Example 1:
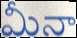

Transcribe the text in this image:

మీనా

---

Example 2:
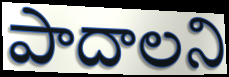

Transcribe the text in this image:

పాదాలని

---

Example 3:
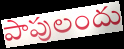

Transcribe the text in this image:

పాపులందు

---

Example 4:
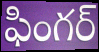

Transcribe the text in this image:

ఫింగర్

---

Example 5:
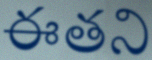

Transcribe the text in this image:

ఈతని